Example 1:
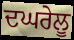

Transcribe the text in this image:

ਦਘਰੇਲੂ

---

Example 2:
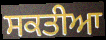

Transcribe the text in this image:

ਸਕਤੀਆ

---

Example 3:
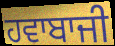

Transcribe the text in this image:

ਹਵਾਬਾਜੀ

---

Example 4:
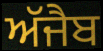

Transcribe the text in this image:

ਅੱਜੈਬ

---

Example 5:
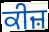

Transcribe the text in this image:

ਕੀਜ਼